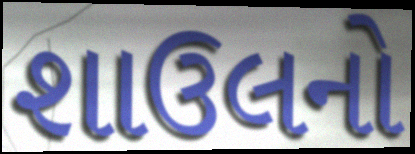
શાઉલનો